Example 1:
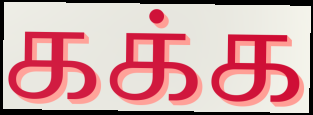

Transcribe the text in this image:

கக்க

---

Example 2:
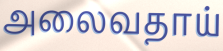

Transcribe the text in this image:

அலைவதாய்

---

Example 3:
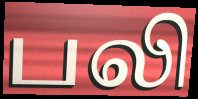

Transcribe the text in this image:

பலி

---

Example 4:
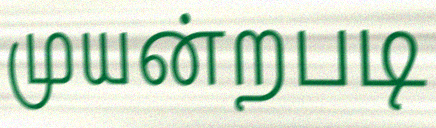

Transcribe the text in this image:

முயன்றபடி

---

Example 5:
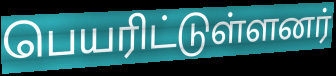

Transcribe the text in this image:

பெயரிட்டுள்ளனர்